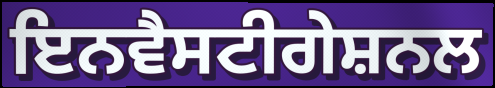
ਇਨਵੈਸਟੀਗੇਸ਼ਨਲ